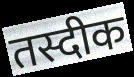
तस्‍दीक